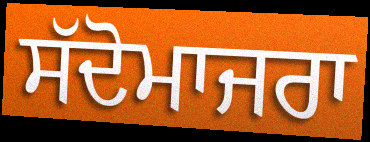
ਸੱਦੋਮਾਜਰਾ